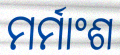
ମର୍ମାଂଶ